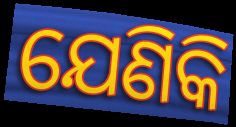
ଯେଣିକି